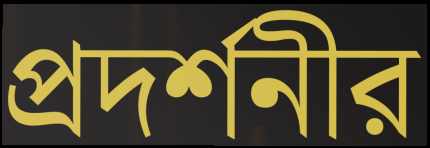
প্রদর্শনীর